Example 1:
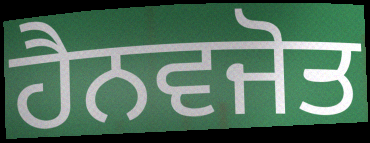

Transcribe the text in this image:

ਹੈਨਵਜੋਤ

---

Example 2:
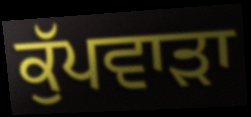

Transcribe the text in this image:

ਕੁੱਪਵਾੜਾ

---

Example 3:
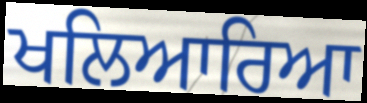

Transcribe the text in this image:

ਖਲਿਆਰਿਆ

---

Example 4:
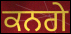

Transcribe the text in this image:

ਕਨਗੇ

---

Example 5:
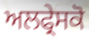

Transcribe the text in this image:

ਅਲਫ੍ਰੇਸਕੋ